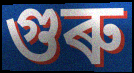
গুৰু